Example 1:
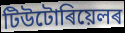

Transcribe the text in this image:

টিউটোৰিয়েলৰ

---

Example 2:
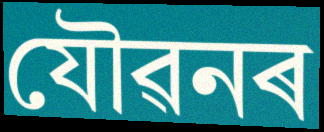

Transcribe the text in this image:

যৌৱনৰ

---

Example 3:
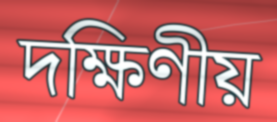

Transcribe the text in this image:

দক্ষিণীয়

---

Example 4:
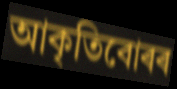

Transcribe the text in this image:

আকৃতিবোৰৰ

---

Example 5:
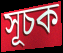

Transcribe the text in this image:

সূচক